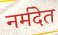
नर्मदेत